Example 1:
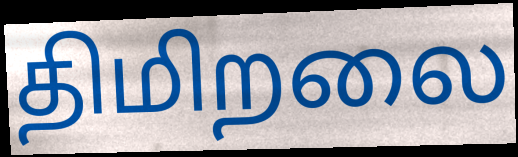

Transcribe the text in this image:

திமிறலை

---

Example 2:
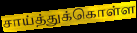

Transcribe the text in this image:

சாய்த்துக்கொள்ள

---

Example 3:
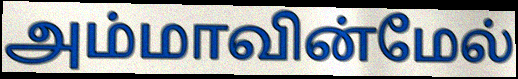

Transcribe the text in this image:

அம்மாவின்மேல்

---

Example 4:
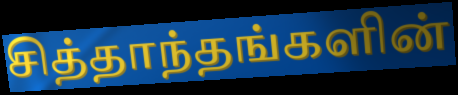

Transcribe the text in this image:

சித்தாந்தங்களின்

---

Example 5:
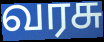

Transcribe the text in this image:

வரசு